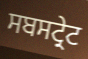
ਸਬਸਟ੍ਰੇਟ